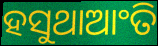
ହସୁଥାଆଂତି